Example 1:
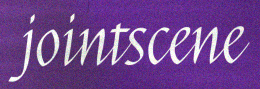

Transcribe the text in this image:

jointscene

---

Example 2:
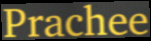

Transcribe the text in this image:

Prachee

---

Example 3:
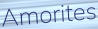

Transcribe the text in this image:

Amorites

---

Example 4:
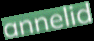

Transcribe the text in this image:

annelid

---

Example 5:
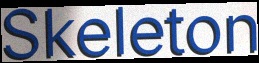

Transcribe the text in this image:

Skeleton